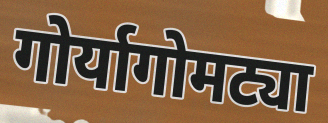
गोर्यागोमट्या